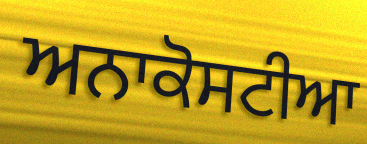
ਅਨਾਕੋਸਟੀਆ